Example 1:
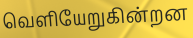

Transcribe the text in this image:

வெளியேறுகின்றன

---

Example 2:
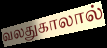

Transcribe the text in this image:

வலதுகாலால்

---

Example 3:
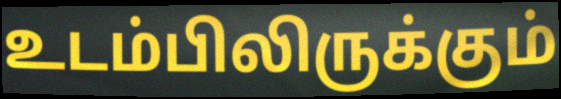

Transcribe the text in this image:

உடம்பிலிருக்கும்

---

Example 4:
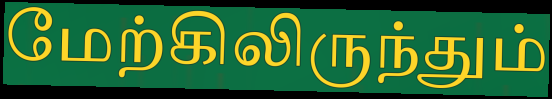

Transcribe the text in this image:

மேற்கிலிருந்தும்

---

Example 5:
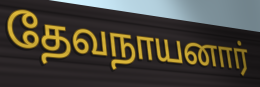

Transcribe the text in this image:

தேவநாயனார்